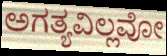
ಅಗತ್ಯವಿಲ್ಲವೋ